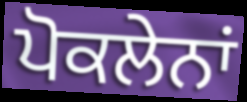
ਪੋਕਲੇਨਾਂ